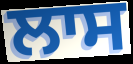
ਲਾਸ